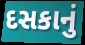
દસકાનું